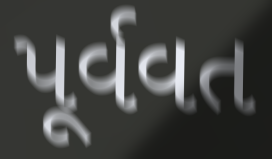
પૂર્વવત